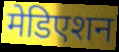
मेडिएशन